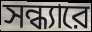
সন্ধ্যারে